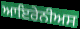
ਆਇਰੇਨੀਅਸ